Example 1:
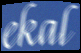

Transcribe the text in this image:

ekal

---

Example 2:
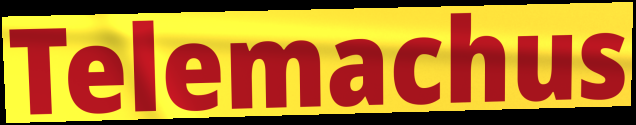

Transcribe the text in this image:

Telemachus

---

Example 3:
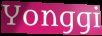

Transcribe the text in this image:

Yonggi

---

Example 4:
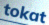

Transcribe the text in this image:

tokat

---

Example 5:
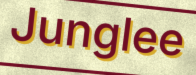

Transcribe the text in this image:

Junglee